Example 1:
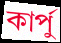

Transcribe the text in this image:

কার্পু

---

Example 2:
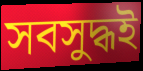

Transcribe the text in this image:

সবসুদ্ধই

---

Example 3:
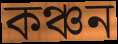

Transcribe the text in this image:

কঞ্চন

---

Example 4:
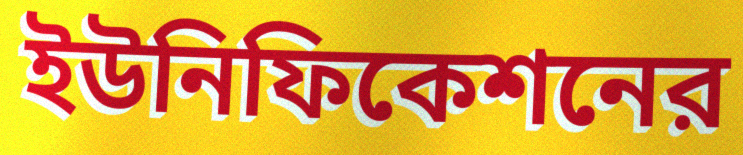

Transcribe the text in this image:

ইউনিফিকেশনের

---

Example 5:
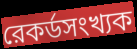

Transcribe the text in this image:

রেকর্ডসংখ্যক